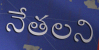
నేతలని